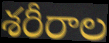
శరీరాల